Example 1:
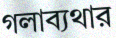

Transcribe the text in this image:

গলাব্যথার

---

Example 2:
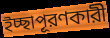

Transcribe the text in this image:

ইচ্ছাপূরণকারী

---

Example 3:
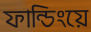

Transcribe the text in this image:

ফান্ডিংয়ে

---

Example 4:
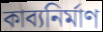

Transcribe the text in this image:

কাব্যনির্মাণ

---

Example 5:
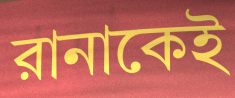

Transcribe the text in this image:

রানাকেই